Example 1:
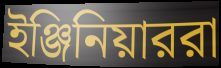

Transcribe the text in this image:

ইঞ্জিনিয়াররা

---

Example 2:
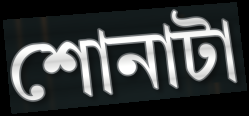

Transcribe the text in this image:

শোনাটা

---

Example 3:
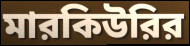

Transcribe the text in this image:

মারকিউরির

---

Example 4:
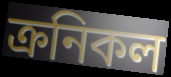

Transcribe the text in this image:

ক্রনিকল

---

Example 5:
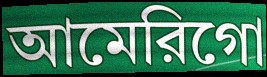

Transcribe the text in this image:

আমেরিগো